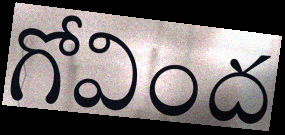
గోవింద